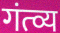
गंत्व्य